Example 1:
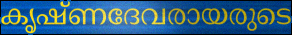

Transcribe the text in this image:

കൃഷ്ണദേവരായരുടെ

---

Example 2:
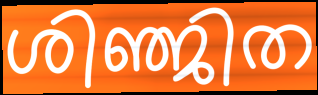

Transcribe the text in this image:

ശിഞ്ജിത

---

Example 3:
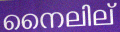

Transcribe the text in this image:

നൈലില്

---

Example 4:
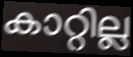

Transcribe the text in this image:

കാറ്റില്ല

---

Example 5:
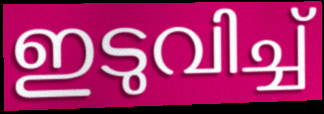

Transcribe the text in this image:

ഇടുവിച്ച്